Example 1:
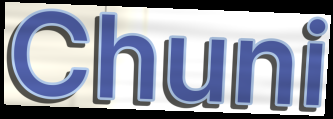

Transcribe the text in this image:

Chuni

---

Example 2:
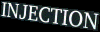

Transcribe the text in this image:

INJECTION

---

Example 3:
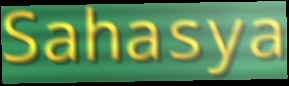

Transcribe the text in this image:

Sahasya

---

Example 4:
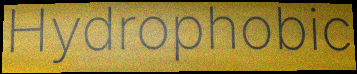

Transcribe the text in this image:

Hydrophobic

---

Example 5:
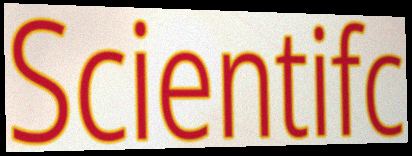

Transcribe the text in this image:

Scientifc